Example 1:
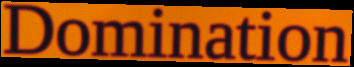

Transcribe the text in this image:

Domination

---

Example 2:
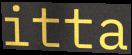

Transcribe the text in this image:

itta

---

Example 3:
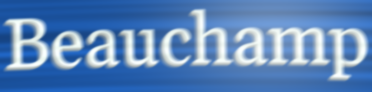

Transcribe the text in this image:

Beauchamp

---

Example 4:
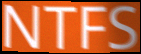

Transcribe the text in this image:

NTFS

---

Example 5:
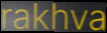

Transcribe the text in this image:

rakhva